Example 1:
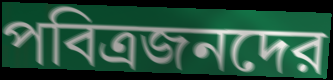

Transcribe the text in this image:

পবিত্রজনদের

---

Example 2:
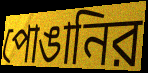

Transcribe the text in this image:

পোঙানির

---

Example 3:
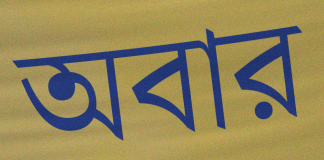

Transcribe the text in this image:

অবার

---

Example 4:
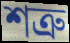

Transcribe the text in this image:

শত্রু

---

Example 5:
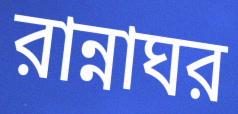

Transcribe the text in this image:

রান্নাঘর